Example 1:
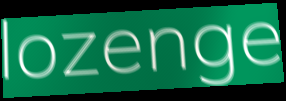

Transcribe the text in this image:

lozenge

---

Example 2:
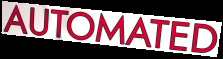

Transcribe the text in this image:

AUTOMATED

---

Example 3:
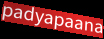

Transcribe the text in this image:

padyapaana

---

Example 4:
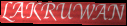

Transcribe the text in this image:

LAKRUWAN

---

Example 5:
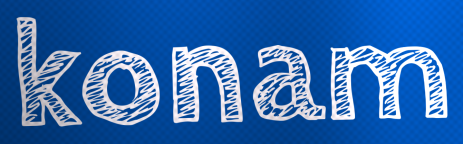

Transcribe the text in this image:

konam